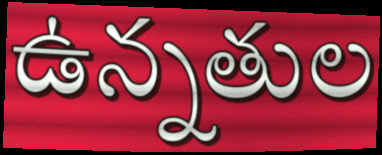
ఉన్నతుల